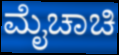
ಮೈಚಾಚಿ